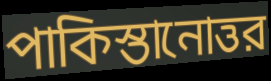
পাকিস্তানোত্তর